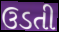
ઉડતી